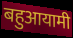
बहुआयामी